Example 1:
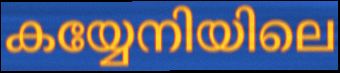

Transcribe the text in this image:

കയ്യേനിയിലെ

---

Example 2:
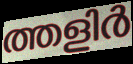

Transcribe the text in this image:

ത്തളിർ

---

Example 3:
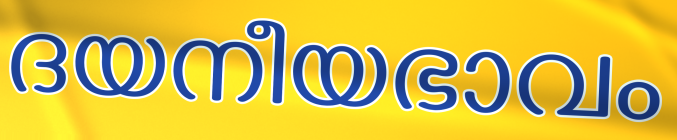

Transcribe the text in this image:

ദയനീയഭാവം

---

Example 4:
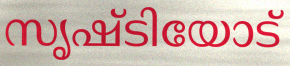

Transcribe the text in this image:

സൃഷ്ടിയോട്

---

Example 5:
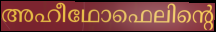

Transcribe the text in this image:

അഹീഥോഫെലിന്റെ